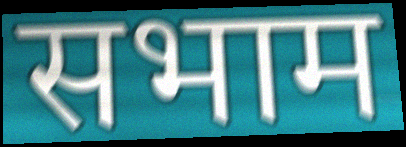
सभाम